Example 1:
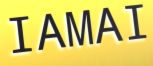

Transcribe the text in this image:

IAMAI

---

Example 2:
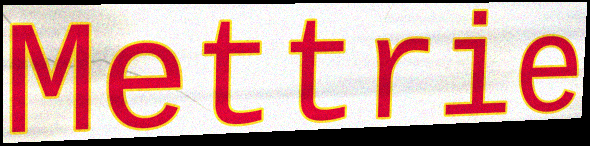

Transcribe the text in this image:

Mettrie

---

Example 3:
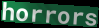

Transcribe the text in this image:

horrors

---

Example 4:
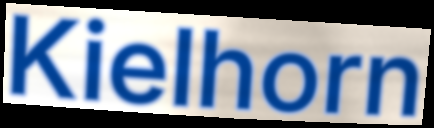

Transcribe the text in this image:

Kielhorn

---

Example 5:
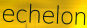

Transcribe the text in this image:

echelon